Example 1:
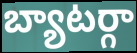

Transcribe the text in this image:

బ్యాటర్గా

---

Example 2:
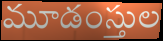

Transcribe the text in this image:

మూడంస్తుల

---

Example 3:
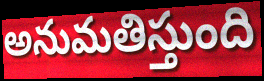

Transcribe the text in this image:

అనుమతిస్తుంది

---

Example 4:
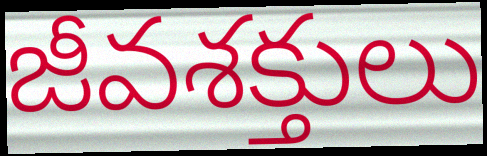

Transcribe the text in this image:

జీవశక్తులు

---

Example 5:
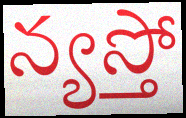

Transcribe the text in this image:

న్యస్తో